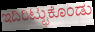
ಇದಿರಿಟ್ಟುಕೊಂಡು